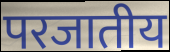
परजातीय